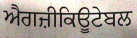
ਐਗਜ਼ੀਕਿਊਟੇਬਲ